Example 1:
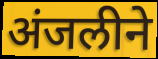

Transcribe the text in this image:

अंजलीने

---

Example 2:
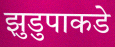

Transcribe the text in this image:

झुडुपाकडे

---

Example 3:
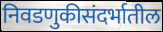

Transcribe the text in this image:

निवडणुकीसंदर्भातील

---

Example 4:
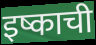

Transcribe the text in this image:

इष्काची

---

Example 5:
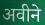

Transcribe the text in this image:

अवीने